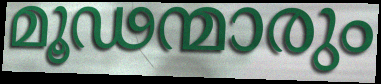
മൂഢന്മാരും